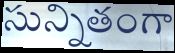
సున్నితంగా